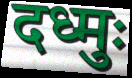
दध्मुः